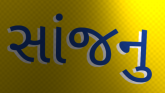
સાંજનુ